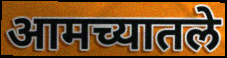
आमच्यातले